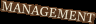
MANAGEMENT